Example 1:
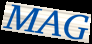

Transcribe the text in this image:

MAG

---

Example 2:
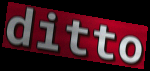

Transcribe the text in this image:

ditto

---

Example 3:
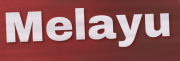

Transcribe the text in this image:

Melayu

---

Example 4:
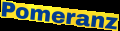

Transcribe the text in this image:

Pomeranz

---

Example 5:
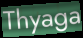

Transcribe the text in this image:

Thyaga